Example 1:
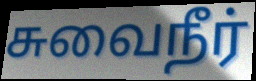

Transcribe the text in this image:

சுவைநீர்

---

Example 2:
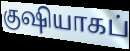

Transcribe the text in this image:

குஷியாகப்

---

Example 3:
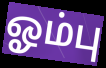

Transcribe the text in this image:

ஓம்பு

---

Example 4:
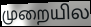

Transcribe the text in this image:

முறையில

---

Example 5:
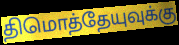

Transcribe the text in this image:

திமொத்தேயுவுக்கு